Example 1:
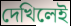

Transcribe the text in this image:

দেখিলেই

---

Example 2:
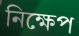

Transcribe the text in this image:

নিক্ষেপ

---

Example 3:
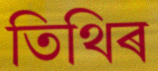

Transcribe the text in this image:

তিথিৰ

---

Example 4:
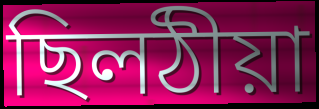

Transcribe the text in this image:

ছিলঠীয়া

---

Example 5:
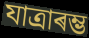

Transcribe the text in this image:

যাত্ৰাৰম্ভ